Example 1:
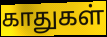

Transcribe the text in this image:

காதுகள்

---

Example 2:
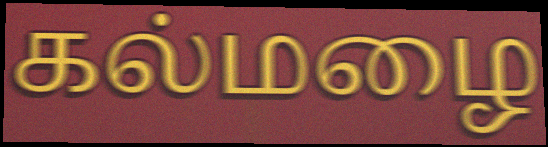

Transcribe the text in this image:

கல்மழை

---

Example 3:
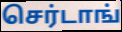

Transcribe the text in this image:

செர்டாங்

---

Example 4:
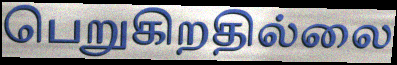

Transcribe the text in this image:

பெறுகிறதில்லை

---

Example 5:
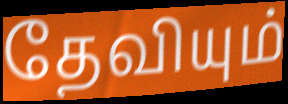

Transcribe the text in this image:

தேவியும்